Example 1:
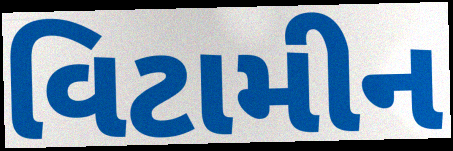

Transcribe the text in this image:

વિટામીન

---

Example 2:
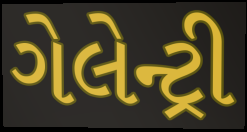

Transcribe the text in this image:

ગેલેન્ટ્રી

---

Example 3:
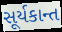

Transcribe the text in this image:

સૂર્યકાન્ત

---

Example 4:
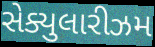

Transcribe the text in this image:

સેક્યુલારીઝમ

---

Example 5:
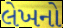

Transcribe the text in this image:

લેખનો